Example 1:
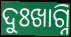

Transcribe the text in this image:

ଦୁଃଖାଗ୍ନି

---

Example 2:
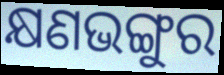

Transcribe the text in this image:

କ୍ଷଣଭଙ୍ଗୁର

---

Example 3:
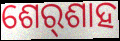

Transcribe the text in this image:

ଶେର୍‌ଶାହ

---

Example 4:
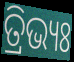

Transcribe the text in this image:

ତ୍ରିଭ୍ୟଃ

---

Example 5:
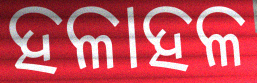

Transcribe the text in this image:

ହଳାହଳ